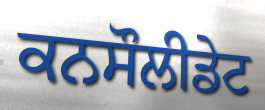
ਕਨਸੌਲੀਡੇਟ